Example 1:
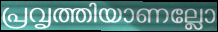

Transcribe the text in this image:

പ്രവൃത്തിയാണല്ലോ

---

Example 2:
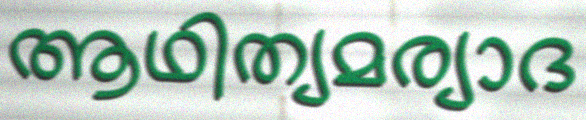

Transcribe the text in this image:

ആഥിത്യമര്യാദ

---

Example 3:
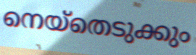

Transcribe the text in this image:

നെയ്തെടുക്കും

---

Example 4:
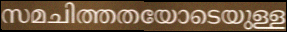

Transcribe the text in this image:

സമചിത്തതയോടെയുള്ള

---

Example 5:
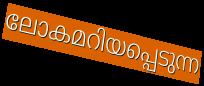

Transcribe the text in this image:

ലോകമറിയപ്പെടുന്ന